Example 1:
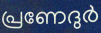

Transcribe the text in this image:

പ്രണേദുർ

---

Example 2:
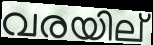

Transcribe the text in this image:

വരയില്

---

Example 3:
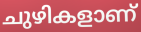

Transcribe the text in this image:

ചുഴികളാണ്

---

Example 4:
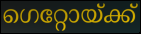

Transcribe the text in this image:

ഗെറ്റോയ്ക്ക്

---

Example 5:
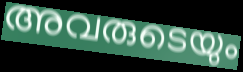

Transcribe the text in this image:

അവരുടെയും